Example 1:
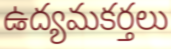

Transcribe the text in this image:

ఉద్యమకర్తలు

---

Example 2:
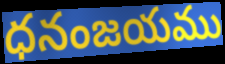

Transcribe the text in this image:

ధనంజయము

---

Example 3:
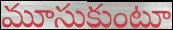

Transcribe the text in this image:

మూసుకుంటూ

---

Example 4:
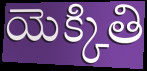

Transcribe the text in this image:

యెక్కితి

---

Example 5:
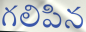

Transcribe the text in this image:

గలిపిన